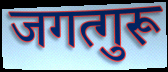
जगत्गुरू